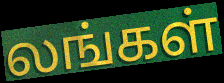
லங்கள்